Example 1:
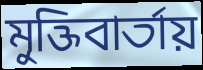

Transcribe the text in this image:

মুক্তিবার্তায়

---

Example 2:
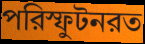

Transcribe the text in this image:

পরিস্ফুটনরত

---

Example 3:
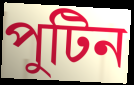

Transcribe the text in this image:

পুটিন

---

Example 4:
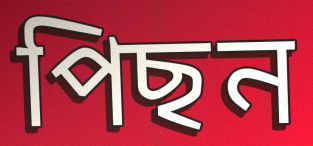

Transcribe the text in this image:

পিছন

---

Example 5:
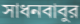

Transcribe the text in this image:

সাধনবাবুর